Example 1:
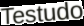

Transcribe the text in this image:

Testudo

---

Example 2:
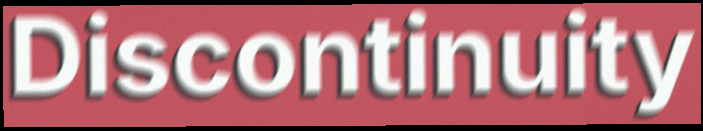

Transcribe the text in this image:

Discontinuity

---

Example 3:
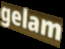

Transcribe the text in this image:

gelam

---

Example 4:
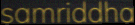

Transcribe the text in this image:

samriddha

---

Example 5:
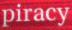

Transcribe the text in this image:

piracy